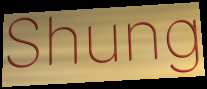
Shung